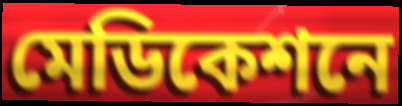
মেডিকেশনে